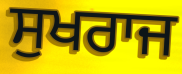
ਸੁਖਰਾਜ